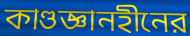
কাণ্ডজ্ঞানহীনের